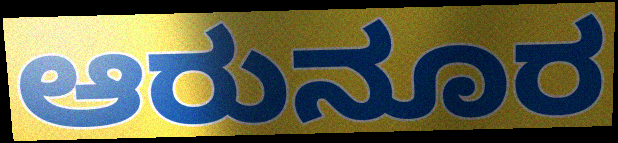
ಆರುನೂರ